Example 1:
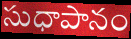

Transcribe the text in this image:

సుధాపానం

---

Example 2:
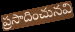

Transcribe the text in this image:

ప్రసాదించునవి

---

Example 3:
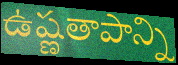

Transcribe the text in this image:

ఉష్ణతాపాన్ని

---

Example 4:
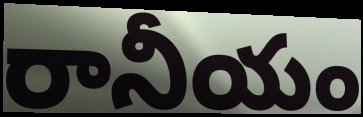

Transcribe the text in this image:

రానీయం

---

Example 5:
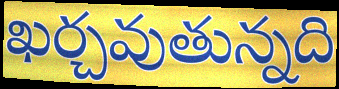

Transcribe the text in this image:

ఖర్చవుతున్నది